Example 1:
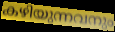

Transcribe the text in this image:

കഴിയുന്നവനും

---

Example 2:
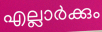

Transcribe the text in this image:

എല്ലാർക്കും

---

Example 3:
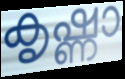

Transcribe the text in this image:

കൃഷ്ണാ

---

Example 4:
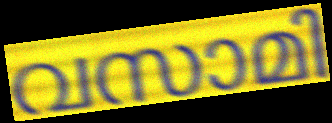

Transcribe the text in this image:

വസാമി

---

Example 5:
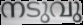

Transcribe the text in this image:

നടുവു